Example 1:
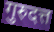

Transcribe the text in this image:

गुरुदत्त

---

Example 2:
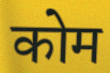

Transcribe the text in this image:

कोम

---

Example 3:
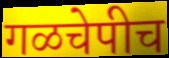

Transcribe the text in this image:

गळचेपीच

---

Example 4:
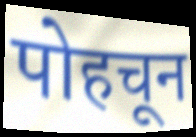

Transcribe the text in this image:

पोहचून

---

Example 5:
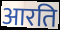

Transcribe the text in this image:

आरति